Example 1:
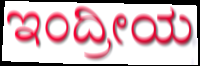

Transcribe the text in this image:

ಇಂದ್ರೀಯ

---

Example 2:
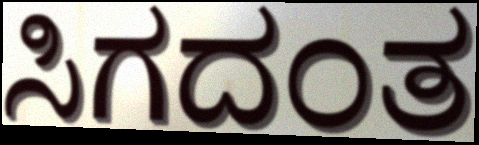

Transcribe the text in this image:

ಸಿಗದಂತ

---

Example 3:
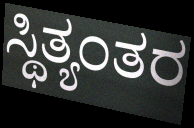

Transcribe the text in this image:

ಸ್ಥಿತ್ಯಂತರ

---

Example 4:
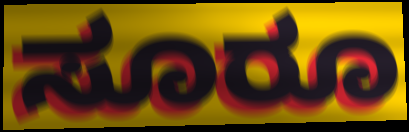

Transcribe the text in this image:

ಸೂರೂ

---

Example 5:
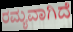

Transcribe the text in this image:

ರಮ್ಯವಾಗಿದೆ